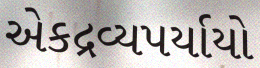
એકદ્રવ્યપર્યાયો